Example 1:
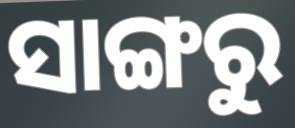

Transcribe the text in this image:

ସାଙ୍ଗରୁ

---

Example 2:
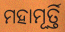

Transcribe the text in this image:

ମହାମୂର୍ତ୍ତି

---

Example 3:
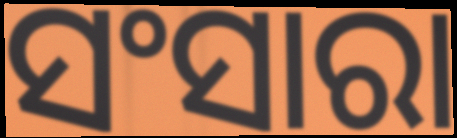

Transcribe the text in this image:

ସଂସାରା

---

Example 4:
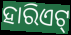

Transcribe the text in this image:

ହାରିଏଟ୍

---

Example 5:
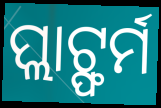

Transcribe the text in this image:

ପ୍ଲାଟ୍ଫର୍ମ